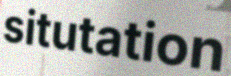
situtation